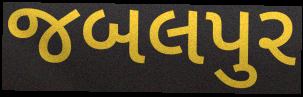
જબલપુર